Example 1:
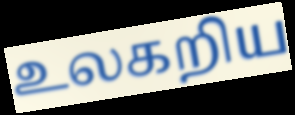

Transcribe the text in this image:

உலகறிய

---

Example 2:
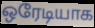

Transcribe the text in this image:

ஒரேடியாக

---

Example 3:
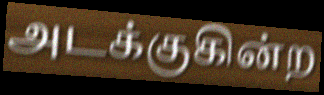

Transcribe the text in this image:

அடக்குகின்ற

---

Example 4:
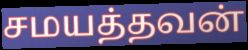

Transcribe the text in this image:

சமயத்தவன்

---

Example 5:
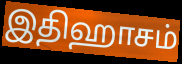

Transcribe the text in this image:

இதிஹாசம்